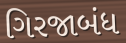
ગિરજાબંધ